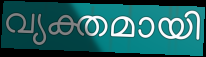
വ്യക്തമായി